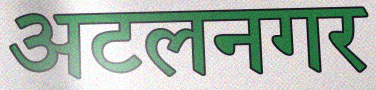
अटलनगर